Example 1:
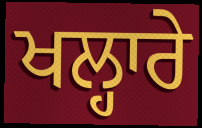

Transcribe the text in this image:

ਖਲ੍ਹਾਰੇ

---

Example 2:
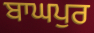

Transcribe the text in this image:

ਬਾਘਪੁਰ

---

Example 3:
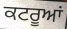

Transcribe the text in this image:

ਕਟਰੂਆਂ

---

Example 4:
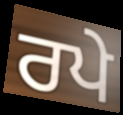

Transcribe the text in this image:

ਰਪੇ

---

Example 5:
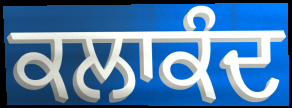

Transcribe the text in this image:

ਕਲਾਕੰਦ